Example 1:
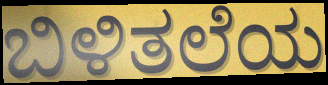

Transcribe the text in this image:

ಬಿಳಿತಲೆಯ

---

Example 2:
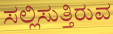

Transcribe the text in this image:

ಸಲ್ಲಿಸುತ್ತಿರುವ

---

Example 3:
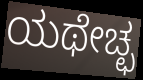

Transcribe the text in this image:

ಯಥೇಚ್ಛ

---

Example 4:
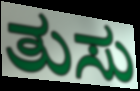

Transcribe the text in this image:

ತುಸು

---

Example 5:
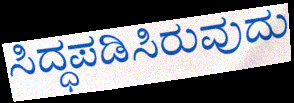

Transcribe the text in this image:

ಸಿದ್ಧಪಡಿಸಿರುವುದು